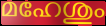
മഹേശും